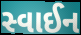
સ્વાઈન